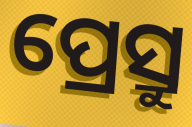
ପ୍ରେସ୍ରୁ